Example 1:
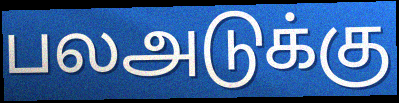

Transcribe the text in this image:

பலஅடுக்கு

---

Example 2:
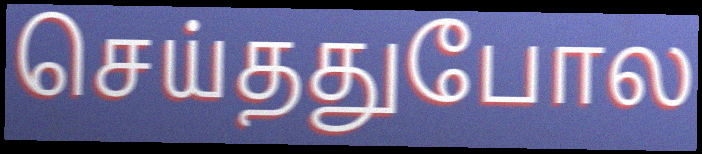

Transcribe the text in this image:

செய்ததுபோல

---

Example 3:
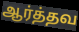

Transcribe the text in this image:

ஆர்த்தவ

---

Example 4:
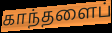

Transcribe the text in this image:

காந்தளைப்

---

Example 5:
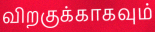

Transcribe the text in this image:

விறகுக்காகவும்